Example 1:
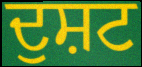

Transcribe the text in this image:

ਦੁਸ਼ਟ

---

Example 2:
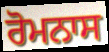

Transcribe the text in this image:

ਰੋਮਨਾਸ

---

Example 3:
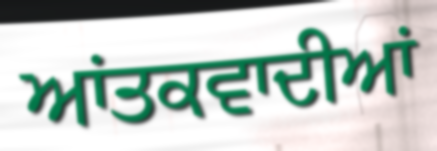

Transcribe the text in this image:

ਆਂਤਕਵਾਦੀਆਂ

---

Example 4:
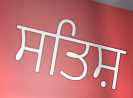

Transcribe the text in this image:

ਸਤਿਸ਼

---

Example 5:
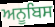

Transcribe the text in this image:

ਅਨੂਬਿਸ